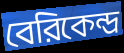
বেরিকেন্দ্র